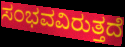
ಸಂಭವವಿರುತ್ತದೆ